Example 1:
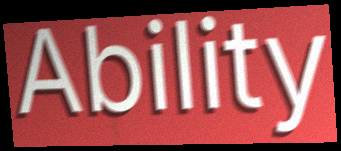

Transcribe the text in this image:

Ability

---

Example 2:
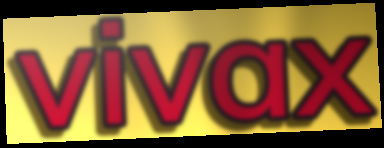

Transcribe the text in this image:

vivax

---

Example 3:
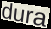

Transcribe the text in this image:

dura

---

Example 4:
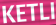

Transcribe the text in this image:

KETLI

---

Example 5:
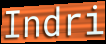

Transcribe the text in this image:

Indri